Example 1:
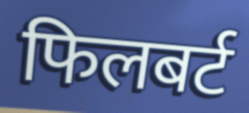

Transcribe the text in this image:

फिलबर्ट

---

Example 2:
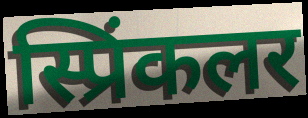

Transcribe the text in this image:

स्प्रिंकलर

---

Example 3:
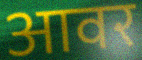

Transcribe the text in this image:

आवर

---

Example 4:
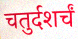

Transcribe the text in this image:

चतुर्दशर्चं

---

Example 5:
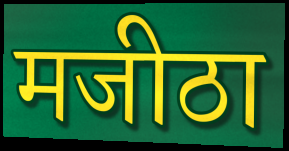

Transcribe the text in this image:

मजीठा